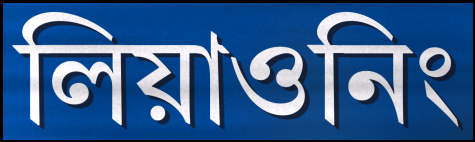
লিয়াওনিং